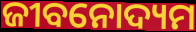
ଜୀବନୋଦ୍ୟମ